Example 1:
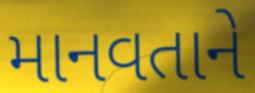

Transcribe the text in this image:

માનવતાને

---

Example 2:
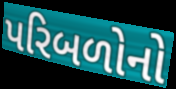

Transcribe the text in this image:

પરિબળોનો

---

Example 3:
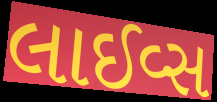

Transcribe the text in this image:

લાઈવ્સ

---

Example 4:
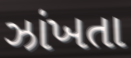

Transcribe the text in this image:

ઝાંખતા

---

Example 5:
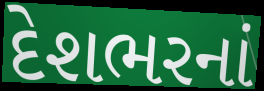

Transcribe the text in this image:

દેશભરનાં